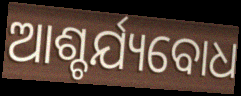
ଆଶ୍ଚର୍ଯ୍ୟବୋଧ